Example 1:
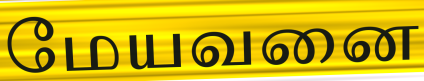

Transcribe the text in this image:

மேயவனை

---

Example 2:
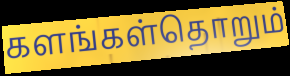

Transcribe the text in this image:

களங்கள்தொறும்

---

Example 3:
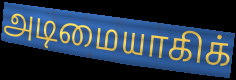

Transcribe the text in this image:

அடிமையாகிக்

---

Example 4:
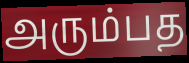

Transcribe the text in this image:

அரும்பத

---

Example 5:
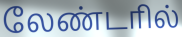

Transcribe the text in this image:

லேண்டரில்